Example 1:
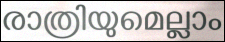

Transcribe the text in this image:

രാത്രിയുമെല്ലാം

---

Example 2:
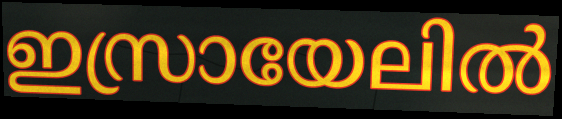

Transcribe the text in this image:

ഇസ്രായേലിൽ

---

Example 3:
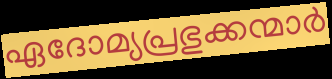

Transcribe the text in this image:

ഏദോമ്യപ്രഭുക്കന്മാർ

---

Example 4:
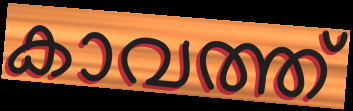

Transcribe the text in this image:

കാവത്ത്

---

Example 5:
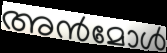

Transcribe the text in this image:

അൻമോൾ